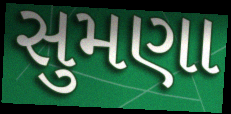
સુમણા